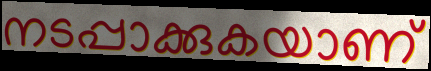
നടപ്പാക്കുകയാണ്